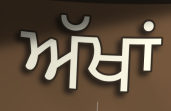
ਅੱਖਾਂ